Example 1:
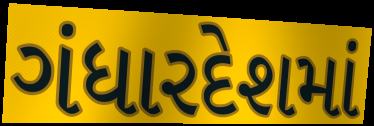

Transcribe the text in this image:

ગંધારદેશમાં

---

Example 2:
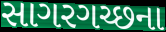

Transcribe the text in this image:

સાગરગચ્છના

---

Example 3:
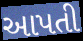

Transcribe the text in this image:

આપતી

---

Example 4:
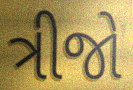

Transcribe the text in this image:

ત્રીજો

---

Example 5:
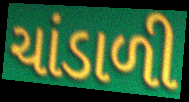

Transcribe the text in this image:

ચાંડાળી